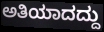
ಅತಿಯಾದದ್ದು